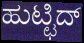
ಹುಟ್ಟಿದ್